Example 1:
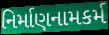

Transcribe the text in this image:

નિર્માણનામકર્મ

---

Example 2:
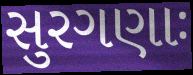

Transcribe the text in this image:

સુરગણાઃ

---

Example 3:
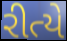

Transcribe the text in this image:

રીત્યે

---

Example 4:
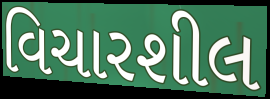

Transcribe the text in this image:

વિચારશીલ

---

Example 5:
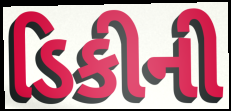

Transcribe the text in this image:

ડિકીની